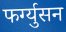
फर्ग्युसन